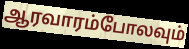
ஆரவாரம்போலவும்